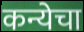
कन्येचा